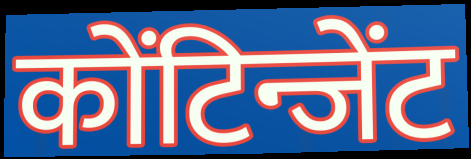
कोंटिन्जेंट